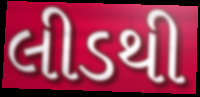
લીડથી